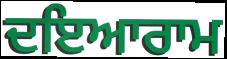
ਦਇਆਰਾਮ